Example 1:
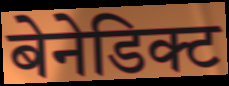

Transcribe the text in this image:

बेनेडिक्ट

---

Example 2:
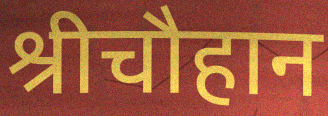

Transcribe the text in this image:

श्रीचौहान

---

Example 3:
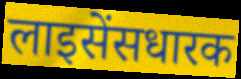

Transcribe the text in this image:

लाइसेंसधारक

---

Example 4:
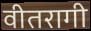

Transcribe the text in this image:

वीतरागी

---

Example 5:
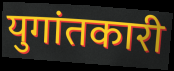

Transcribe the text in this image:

युगांतकारी